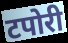
टपोरी